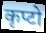
कृप्टो